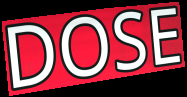
DOSE